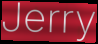
Jerry